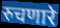
रुचणारे